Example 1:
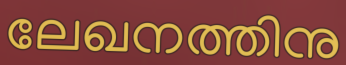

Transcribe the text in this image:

ലേഖനത്തിനു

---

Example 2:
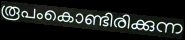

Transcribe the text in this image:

രൂപംകൊണ്ടിരിക്കുന്ന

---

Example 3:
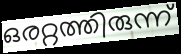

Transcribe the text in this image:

ഒരറ്റത്തിരുന്ന്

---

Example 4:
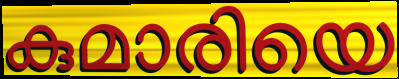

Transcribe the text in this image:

കുമാരിയെ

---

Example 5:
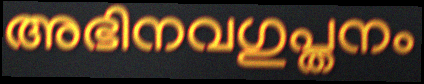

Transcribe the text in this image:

അഭിനവഗുപ്തനം